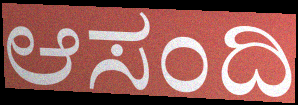
ಆಸಂದಿ